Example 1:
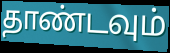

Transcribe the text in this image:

தாண்டவும்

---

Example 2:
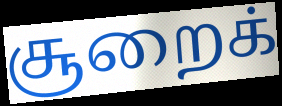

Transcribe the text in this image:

சூறைக்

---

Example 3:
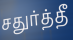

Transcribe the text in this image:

சதுர்த்தீ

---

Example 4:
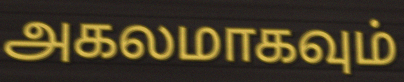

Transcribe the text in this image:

அகலமாகவும்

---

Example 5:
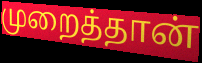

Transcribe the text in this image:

முறைத்தான்